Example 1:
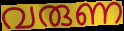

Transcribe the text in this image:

വരുണ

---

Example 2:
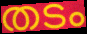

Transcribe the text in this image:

തടം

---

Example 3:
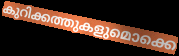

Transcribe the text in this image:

കുറിക്കത്തുകളുമൊക്കെ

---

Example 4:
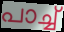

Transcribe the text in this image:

പാച്ച്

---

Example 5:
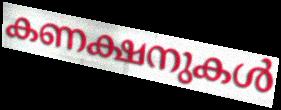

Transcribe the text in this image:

കണക്ഷനുകൾ